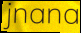
jnana